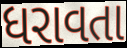
ધરાવતા